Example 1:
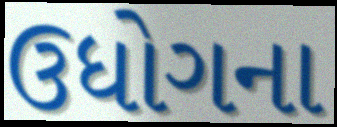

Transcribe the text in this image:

ઉધોગના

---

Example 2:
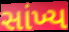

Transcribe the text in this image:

સાંખ્ય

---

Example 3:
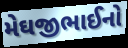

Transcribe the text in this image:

મેઘજીભાઈનો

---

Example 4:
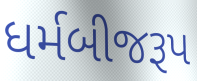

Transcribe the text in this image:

ધર્મબીજરૂપ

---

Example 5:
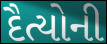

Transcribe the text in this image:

દૈત્યોની